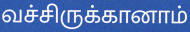
வச்சிருக்கானாம்